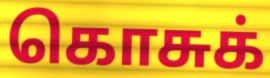
கொசுக்